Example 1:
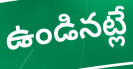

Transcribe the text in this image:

ఉండినట్లే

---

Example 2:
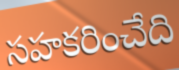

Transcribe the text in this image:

సహకరించేది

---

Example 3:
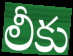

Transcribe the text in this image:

లీకు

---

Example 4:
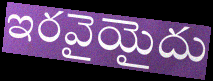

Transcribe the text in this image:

ఇరవైయైదు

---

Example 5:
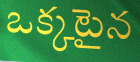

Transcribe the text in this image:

ఒక్కటైన